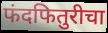
फंदफितुरीचा